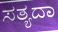
ಸತ್ಯದಾ